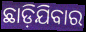
ଛାଡ଼ିଯିବାର